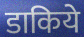
डाकिये